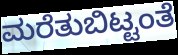
ಮರೆತುಬಿಟ್ಟಂತೆ